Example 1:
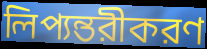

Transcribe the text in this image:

লিপ্যন্তরীকরণ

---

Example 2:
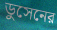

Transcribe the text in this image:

ডুসেনের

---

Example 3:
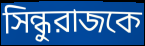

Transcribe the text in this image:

সিন্ধুরাজকে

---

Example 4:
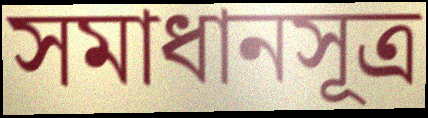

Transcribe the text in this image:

সমাধানসূত্র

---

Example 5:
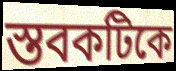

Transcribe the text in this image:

স্তবকটিকে